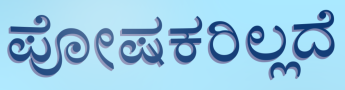
ಪೋಷಕರಿಲ್ಲದೆ